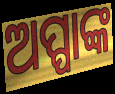
ଅପ୍ପାଙ୍କ